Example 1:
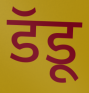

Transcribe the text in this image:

डॅडू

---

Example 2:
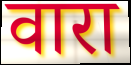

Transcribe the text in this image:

वारा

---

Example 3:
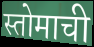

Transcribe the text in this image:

स्तोमाची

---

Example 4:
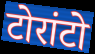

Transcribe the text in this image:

टोरांटो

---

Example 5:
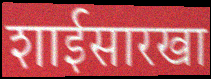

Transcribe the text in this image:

शाईसारखा